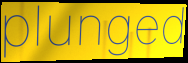
plunged